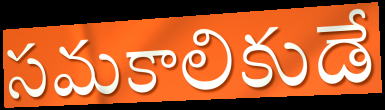
సమకాలికుడే